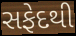
સફેદથી